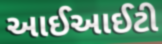
આઈઆઈટી